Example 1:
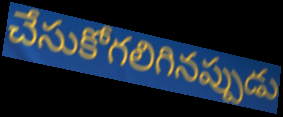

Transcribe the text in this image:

చేసుకోగలిగినప్పుడు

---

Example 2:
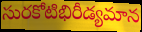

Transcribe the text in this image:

సురకోటిభిరీడ్యమాన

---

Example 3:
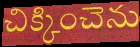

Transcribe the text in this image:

చిక్కించెను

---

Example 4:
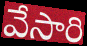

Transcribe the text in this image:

వేసారి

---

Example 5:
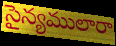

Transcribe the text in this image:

సైన్యములారా